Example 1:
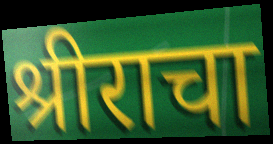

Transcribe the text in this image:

श्रीराचा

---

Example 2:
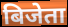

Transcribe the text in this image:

बिजेता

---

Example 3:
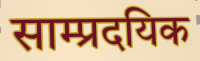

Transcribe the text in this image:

साम्प्रदयिक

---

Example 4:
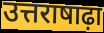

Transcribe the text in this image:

उत्तराषाढ़ा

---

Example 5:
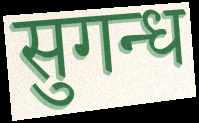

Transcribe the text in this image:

सुगन्ध